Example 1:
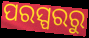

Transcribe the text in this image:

ପରସ୍ପରରୁ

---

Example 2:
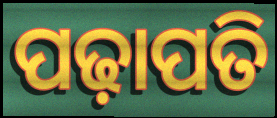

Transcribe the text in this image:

ପଢ଼ାପତି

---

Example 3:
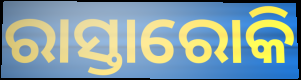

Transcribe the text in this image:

ରାସ୍ତାରୋକି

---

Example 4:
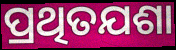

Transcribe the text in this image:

ପ୍ରଥିତଯଶା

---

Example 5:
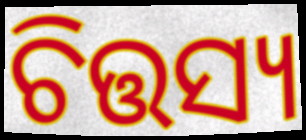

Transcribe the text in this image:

ଚିତ୍ତସ୍ୟ